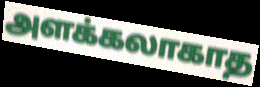
அளக்கலாகாத